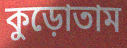
কুড়োতাম